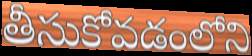
తీసుకోవడంలోని